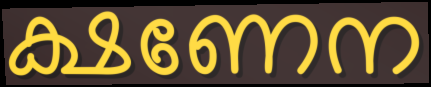
ക്ഷണേന